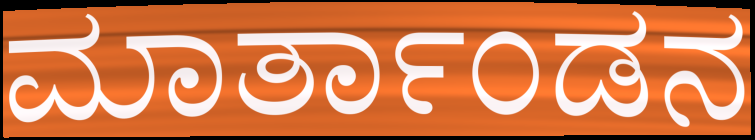
ಮಾರ್ತಾಂಡನ